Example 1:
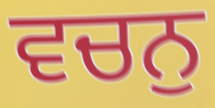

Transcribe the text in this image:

ਵਚਨੁ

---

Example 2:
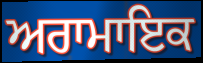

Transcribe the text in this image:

ਅਰਾਮਾਇਕ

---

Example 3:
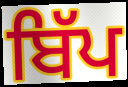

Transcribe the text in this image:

ਬਿੱਪ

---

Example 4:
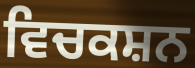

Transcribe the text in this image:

ਵਿਚਕਸ਼ਨ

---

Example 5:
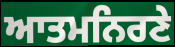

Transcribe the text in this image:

ਆਤਮਨਿਰਣੇ